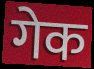
गेक